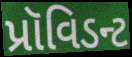
પ્રૉવિડન્ટ